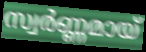
സ്വർണ്ണമായ്